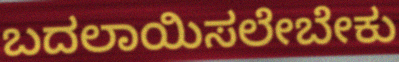
ಬದಲಾಯಿಸಲೇಬೇಕು